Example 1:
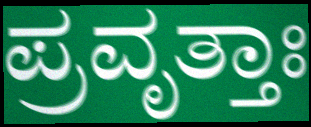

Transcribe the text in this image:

ಪ್ರವೃತ್ತಾಃ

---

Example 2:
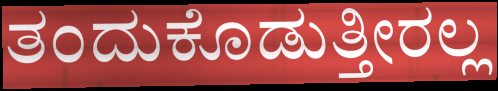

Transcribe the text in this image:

ತಂದುಕೊಡುತ್ತೀರಲ್ಲ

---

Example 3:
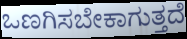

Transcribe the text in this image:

ಒಣಗಿಸಬೇಕಾಗುತ್ತದೆ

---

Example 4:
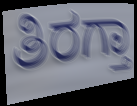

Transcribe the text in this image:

ತಿರಗ್ತಾ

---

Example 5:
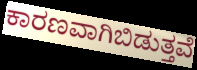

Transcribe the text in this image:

ಕಾರಣವಾಗಿಬಿಡುತ್ತವೆ